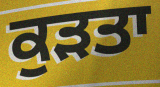
ਕੁੜਤਾ